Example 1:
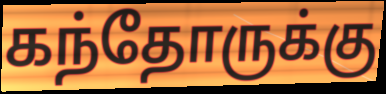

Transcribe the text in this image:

கந்தோருக்கு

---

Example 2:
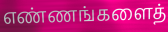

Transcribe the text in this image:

எண்ணங்களைத்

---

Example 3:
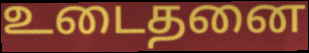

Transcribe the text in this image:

உடைதனை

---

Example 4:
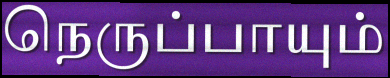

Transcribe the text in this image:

நெருப்பாயும்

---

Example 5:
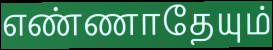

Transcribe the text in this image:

எண்ணாதேயும்